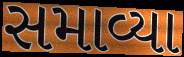
સમાવ્યા